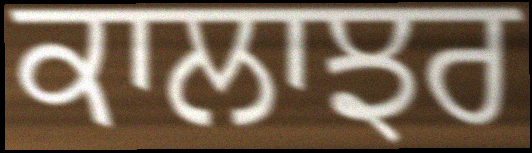
ਕਾਲਾਝਰ